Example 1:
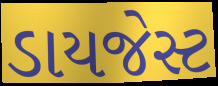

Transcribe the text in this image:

ડાયજેસ્ટ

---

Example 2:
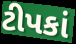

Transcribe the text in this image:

ટીપકાં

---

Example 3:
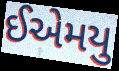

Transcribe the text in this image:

ઈએમયુ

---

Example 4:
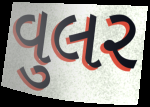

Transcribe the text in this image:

વુલર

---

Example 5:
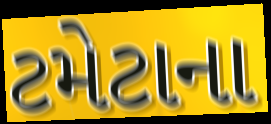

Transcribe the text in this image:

ટમેટાના